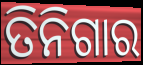
ତିନିଗାର